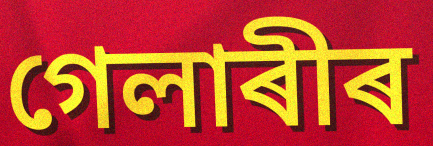
গেলাৰীৰ